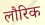
लौरिक